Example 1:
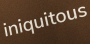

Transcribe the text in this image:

iniquitous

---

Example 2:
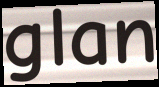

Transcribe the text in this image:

glan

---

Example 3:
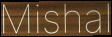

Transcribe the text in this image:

Mishal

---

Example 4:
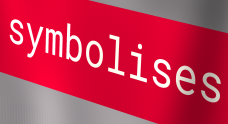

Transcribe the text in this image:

symbolises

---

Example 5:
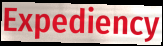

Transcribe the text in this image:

Expediency